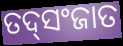
ତଦ୍‌ସଂଜାତ